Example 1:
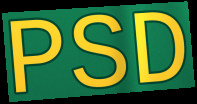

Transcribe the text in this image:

PSD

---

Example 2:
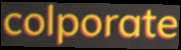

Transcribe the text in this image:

colporate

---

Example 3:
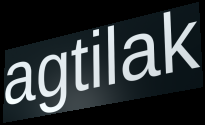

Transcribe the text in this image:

agtilak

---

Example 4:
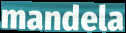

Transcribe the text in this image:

mandela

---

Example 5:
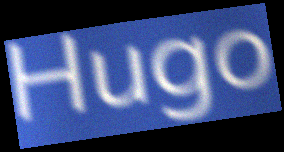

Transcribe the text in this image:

Hugo